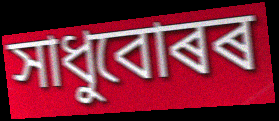
সাধুবোৰৰ